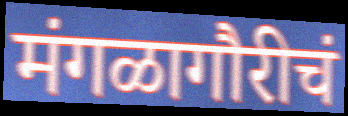
मंगळागौरीचं